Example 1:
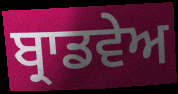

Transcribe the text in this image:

ਬ੍ਰਾਡਵੇਅ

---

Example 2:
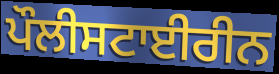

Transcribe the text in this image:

ਪੌਲੀਸਟਾਈਰੀਨ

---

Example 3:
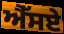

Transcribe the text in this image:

ਐੱਸਏ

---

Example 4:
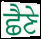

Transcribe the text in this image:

ਛੈਣੇ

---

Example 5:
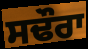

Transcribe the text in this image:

ਸਢੌਰਾ